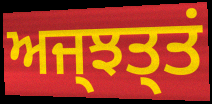
ਅਜ੍ਝਤ੍ਤਂ